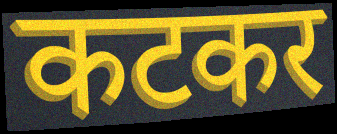
कटकर